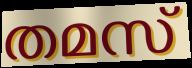
തമസ്